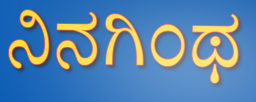
ನಿನಗಿಂಥ